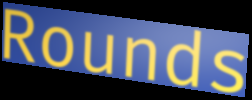
Rounds